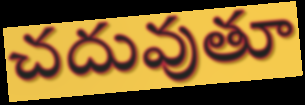
చదువుతూ